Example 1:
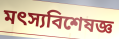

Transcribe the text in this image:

মৎস্যবিশেষজ্ঞ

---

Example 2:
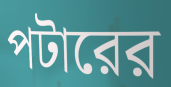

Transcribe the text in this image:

পটারের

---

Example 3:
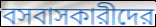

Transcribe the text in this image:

বসবাসকারীদের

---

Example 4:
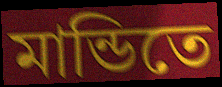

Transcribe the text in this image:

মান্ডিতে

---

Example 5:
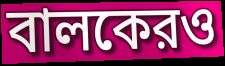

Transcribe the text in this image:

বালকেরও